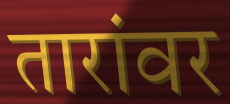
तारांवर